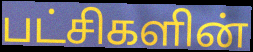
பட்சிகளின்